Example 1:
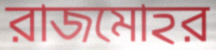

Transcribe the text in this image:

রাজমোহর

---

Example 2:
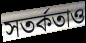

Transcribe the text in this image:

সতর্কতাও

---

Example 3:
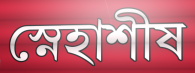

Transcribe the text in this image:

স্নেহাশীষ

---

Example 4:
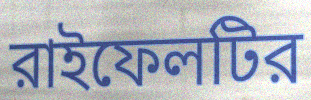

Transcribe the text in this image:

রাইফেলটির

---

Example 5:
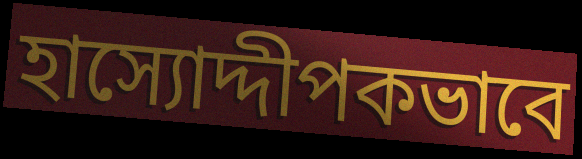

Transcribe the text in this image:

হাস্যোদ্দীপকভাবে